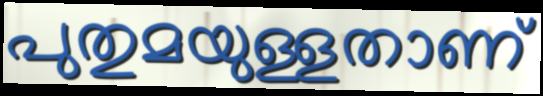
പുതുമയുള്ളതാണ്